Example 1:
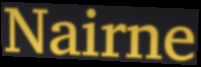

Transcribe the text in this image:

Nairne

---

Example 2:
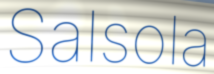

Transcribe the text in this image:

Salsola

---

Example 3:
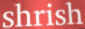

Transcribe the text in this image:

shrish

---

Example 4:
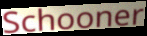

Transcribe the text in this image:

Schooner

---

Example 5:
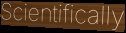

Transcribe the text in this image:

Scientifically